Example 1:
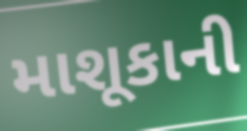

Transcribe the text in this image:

માશૂકાની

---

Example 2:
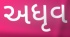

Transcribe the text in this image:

અધૃવ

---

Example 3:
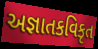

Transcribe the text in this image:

અજ્ઞાતકવિકૃત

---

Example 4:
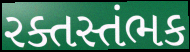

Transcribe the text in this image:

રક્તસ્તંભક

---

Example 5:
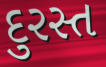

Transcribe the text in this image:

દુરસ્ત